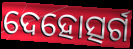
ଦେହୋତ୍ସର୍ଗ